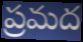
ప్రమద